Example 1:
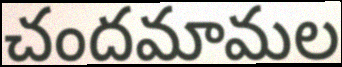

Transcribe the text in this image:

చందమామల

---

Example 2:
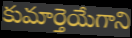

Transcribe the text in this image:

కుమార్తెయేగాని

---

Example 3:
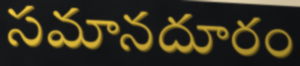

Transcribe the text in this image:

సమానదూరం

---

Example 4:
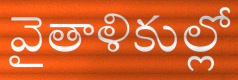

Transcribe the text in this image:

వైతాళికుల్లో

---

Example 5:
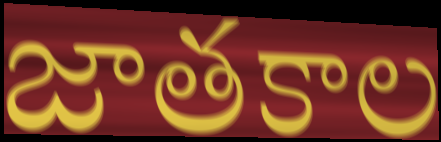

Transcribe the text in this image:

జాతకాల